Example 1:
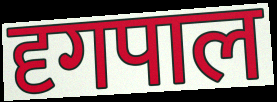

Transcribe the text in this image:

दृगपाल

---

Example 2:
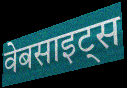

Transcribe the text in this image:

वेबसाइट्स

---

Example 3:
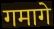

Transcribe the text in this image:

गमागे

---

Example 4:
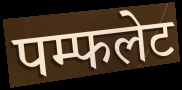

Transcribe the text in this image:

पम्फलेट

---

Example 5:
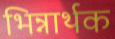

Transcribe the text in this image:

भिन्नार्थक